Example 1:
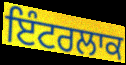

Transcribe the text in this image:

ਇੰਟਰਲਾਕ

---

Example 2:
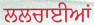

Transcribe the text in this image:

ਲਲਚਾਈਆਂ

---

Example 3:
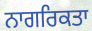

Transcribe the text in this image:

ਨਾਗਰਿਕਤਾ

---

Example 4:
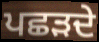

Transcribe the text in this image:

ਪਛੜਦੇ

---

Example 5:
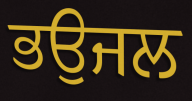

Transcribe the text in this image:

ਭਉਜਲ